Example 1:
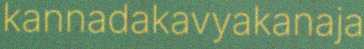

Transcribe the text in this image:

kannadakavyakanaja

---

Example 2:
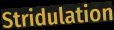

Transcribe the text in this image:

Stridulation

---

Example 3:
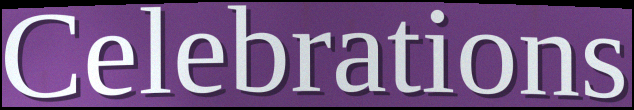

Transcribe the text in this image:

Celebrations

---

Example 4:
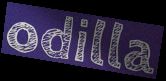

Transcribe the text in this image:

odilla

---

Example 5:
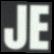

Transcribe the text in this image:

JE